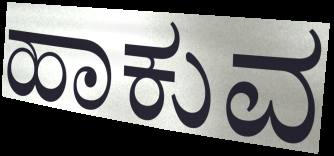
ಹಾಕುವ